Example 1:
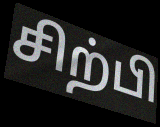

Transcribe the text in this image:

சிற்பி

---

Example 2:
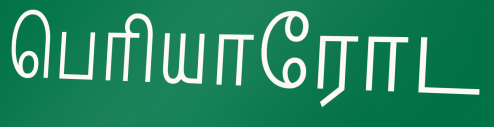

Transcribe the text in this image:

பெரியாரோட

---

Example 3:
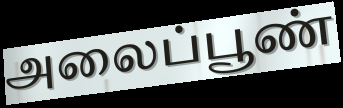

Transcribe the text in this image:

அலைப்பூண்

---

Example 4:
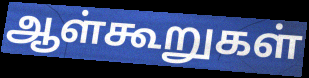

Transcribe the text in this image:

ஆள்கூறுகள்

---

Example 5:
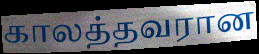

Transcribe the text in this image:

காலத்தவரான